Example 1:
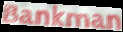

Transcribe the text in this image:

Bankman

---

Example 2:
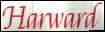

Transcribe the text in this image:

Harward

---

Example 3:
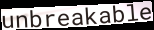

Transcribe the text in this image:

unbreakable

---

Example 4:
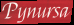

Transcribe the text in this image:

Pynursa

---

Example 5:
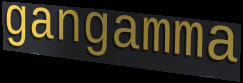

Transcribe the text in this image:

gangamma